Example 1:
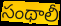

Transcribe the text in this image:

సంథాలీ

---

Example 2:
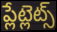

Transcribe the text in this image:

ప్లేట్లెట్స్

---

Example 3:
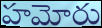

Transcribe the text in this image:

హమోరు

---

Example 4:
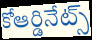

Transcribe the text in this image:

కోఆర్డినేట్స్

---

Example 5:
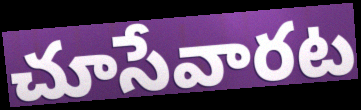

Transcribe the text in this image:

చూసేవారట